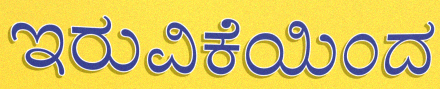
ಇರುವಿಕೆಯಿಂದ